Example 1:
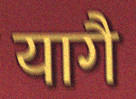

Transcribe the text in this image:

यागै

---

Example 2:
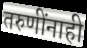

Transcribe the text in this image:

तरुणींनाही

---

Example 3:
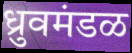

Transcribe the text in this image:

ध्रुवमंडळ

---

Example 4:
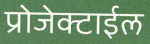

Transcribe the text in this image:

प्रोजेक्टाईल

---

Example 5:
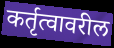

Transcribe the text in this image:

कर्तृत्वावरील